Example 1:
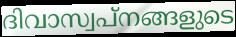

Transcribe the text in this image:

ദിവാസ്വപ്നങ്ങളുടെ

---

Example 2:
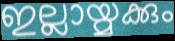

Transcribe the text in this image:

ഇല്ലായ്മക്കും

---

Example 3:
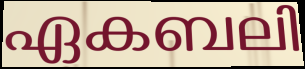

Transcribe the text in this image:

ഏകബലി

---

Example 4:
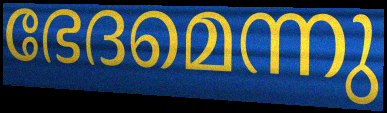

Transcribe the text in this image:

ഭേദമെന്നു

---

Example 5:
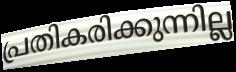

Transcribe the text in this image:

പ്രതികരിക്കുന്നില്ല